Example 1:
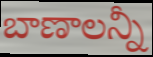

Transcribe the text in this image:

బాణాలన్నీ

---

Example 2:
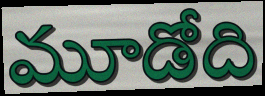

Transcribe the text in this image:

మూడోది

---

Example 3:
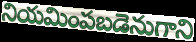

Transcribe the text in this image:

నియమింపబడెనుగాని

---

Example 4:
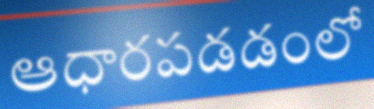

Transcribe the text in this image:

ఆధారపడడంలో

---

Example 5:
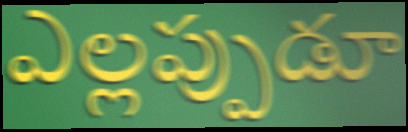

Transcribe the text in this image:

ఎల్లప్పుడూ